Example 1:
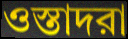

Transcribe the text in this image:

ওস্তাদরা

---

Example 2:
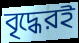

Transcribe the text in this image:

বৃদ্ধেরই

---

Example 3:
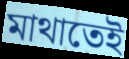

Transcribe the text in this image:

মাথাতেই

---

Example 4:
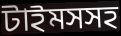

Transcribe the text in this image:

টাইমসসহ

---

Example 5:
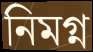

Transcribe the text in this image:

নিমগ্ন